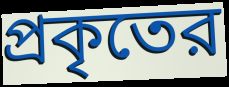
প্রকৃতের